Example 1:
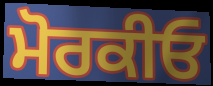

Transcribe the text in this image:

ਮੋਰਕੀਓ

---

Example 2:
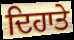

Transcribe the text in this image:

ਦਿਹਾਤੇ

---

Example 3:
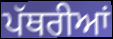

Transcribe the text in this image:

ਪੱਥਰੀਆਂ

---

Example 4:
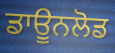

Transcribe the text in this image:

ਡਾਊਨਲੋਡ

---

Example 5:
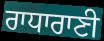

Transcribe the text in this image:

ਰਾਧਾਰਾਣੀ